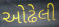
ઓઢેલી